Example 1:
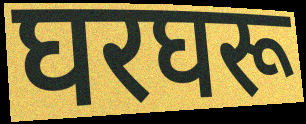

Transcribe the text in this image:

घरघरू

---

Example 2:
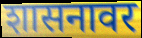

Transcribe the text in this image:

शासनावर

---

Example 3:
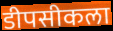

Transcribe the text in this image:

डीपसीकला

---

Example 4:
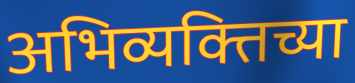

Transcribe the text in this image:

अभिव्यक्तिच्या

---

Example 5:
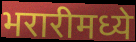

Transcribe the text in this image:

भरारीमध्ये